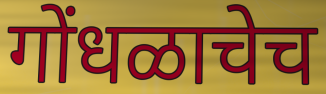
गोंधळाचेच